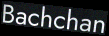
Bachchan